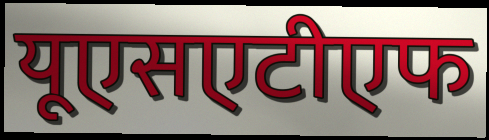
यूएसएटीएफ